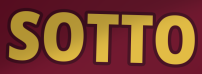
SOTTO